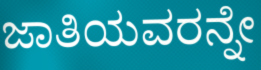
ಜಾತಿಯವರನ್ನೇ